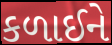
કળાઈને